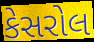
કેસરોલ